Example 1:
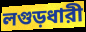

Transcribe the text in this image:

লগুড়ধারী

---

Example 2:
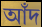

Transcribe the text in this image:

আঁদ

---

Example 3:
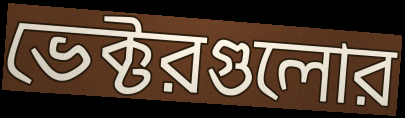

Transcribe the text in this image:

ভেক্টরগুলোর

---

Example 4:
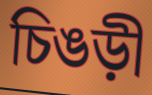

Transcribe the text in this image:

চিঙড়ী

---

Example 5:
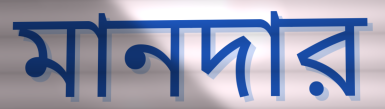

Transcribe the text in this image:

মানদার